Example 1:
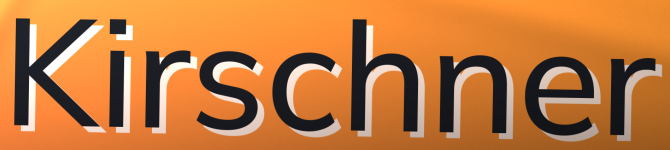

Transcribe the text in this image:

Kirschner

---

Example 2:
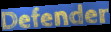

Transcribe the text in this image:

Defender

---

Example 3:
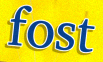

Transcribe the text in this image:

fost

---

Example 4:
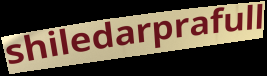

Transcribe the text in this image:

shiledarprafull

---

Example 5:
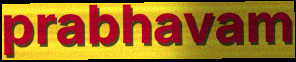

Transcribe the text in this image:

prabhavam